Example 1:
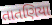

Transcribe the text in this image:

તાતણિયા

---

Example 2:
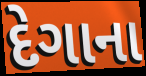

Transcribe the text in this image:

દેગાના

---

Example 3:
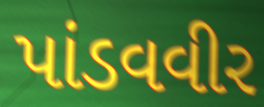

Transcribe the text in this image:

પાંડવવીર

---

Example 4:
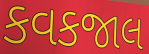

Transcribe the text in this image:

કવકજાલ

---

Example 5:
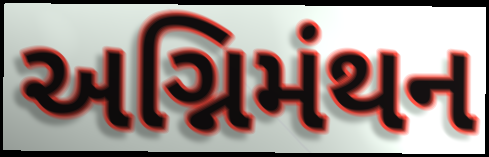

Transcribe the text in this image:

અગ્નિમંથન